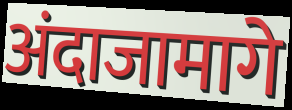
अंदाजामागे